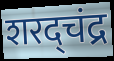
शरद्चंद्र